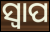
ସ୍ବାପ